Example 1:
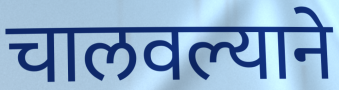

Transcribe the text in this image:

चालवल्याने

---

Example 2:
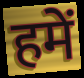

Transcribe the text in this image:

हमें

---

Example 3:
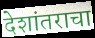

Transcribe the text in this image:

देशांतराचा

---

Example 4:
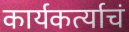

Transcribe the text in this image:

कार्यकर्त्याचं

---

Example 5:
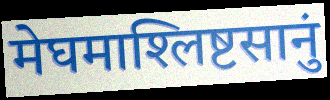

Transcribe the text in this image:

मेघमाश्लिष्टसानुं